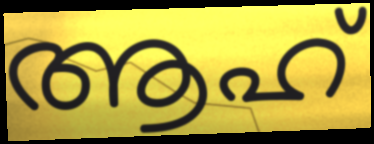
ആഹ്